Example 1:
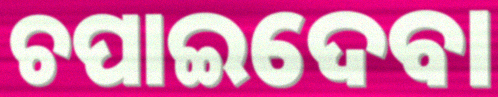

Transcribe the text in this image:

ଚପାଇଦେବା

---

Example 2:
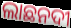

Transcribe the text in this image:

ଲାଛନଦୀ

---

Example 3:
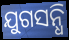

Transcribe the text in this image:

ଯୁଗସନ୍ଧି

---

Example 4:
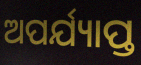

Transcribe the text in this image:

ଅପର୍ଯ୍ୟାପ୍ତ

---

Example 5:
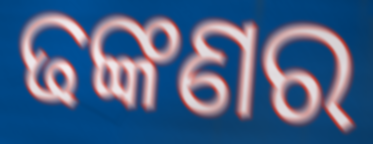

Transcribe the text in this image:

ଢଙ୍କଣର